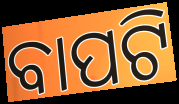
ବାପଟି